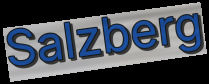
Salzberg